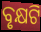
ବୃକ୍ଷଟି